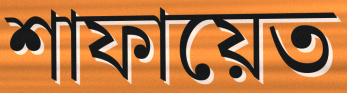
শাফায়েত